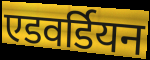
एडवर्डियन